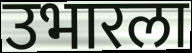
उभारला